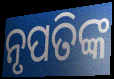
ନୃପତିଙ୍କ